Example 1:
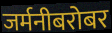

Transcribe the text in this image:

जर्मनीबरोबर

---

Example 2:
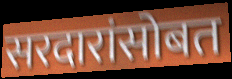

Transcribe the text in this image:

सरदारांसोबत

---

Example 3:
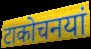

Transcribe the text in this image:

टाकोचनयां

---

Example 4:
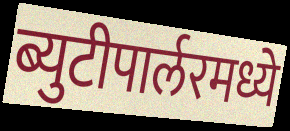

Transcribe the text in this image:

ब्युटीपार्लरमध्ये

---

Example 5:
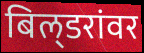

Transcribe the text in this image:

बिल्डरांवर